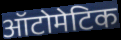
ऑटोमेटिक